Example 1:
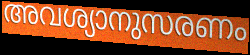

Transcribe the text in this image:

അവശ്യാനുസരണം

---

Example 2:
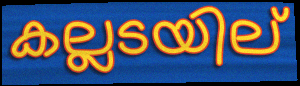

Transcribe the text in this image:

കല്ലടയില്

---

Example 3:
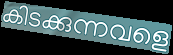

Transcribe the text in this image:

കിടക്കുന്നവളെ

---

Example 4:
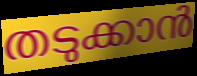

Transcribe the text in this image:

തടുക്കാൻ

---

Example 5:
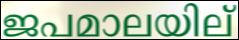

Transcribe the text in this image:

ജപമാലയില്